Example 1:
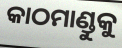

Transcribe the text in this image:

କାଠମାଣ୍ଡୁକୁ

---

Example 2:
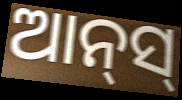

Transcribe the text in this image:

ଆନ୍‌ସ୍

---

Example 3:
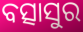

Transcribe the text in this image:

ବତ୍ସାସୁର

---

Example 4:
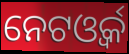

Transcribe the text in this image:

ନେଟଓ୍ବର୍କ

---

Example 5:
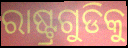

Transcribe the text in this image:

ରାଷ୍ଟ୍ରଗୁଡିକୁ